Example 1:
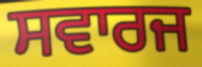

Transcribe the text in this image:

ਸਵਾਰਜ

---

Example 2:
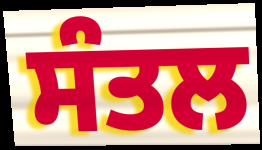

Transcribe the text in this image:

ਸੰਤਲ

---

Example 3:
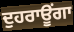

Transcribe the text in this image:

ਦੁਹਰਾਊਂਗਾ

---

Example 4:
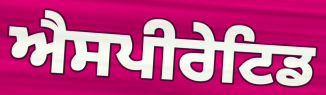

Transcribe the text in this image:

ਐਸਪੀਰੇਟਿਡ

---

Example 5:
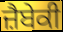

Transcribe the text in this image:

ਜ਼ੈਬੇਕੀ